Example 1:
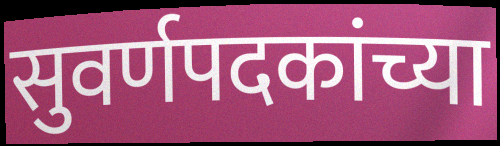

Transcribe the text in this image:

सुवर्णपदकांच्या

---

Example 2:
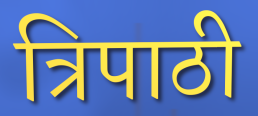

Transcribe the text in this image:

त्रिपाठी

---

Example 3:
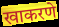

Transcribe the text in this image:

खाकरणे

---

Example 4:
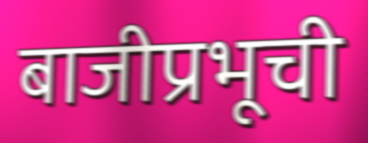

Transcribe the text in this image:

बाजीप्रभूची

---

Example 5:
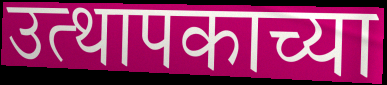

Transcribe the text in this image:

उत्थापकाच्या